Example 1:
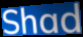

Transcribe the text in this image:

Shad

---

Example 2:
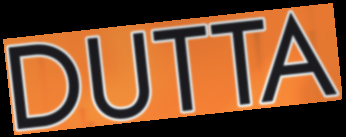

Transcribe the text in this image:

DUTTA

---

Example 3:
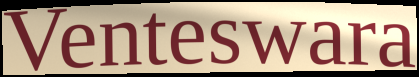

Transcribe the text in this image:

Venteswara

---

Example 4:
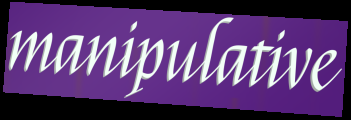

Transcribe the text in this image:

manipulative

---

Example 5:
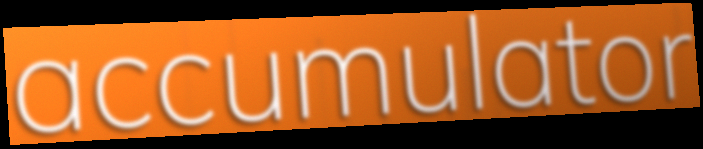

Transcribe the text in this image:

accumulator